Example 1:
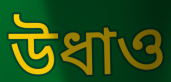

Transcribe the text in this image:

উধাও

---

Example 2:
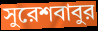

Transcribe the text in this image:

সুরেশবাবুর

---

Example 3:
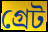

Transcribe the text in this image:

গ্রেট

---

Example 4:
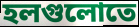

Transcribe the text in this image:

হলগুলোতে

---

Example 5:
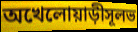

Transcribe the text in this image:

অখেলোয়াড়ীসূলভ